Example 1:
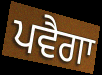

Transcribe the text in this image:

ਪਵੈਗਾ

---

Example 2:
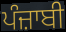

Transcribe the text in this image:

ਪੰਜ਼ਾਬੀ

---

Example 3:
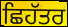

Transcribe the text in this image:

ਛਿਹੱਤਰ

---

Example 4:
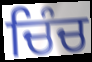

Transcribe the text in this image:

ਚਿੰਚ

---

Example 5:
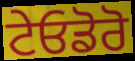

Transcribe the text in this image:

ਟੇਓਡੋਰੋ